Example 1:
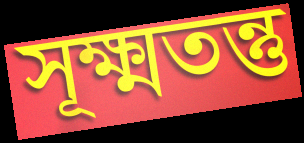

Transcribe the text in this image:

সূক্ষ্মতন্তু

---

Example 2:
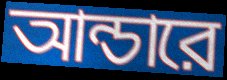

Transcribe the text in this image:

আন্ডারে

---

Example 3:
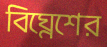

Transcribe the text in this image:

বিঘ্নেশের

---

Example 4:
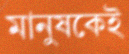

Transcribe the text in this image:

মানুষকেই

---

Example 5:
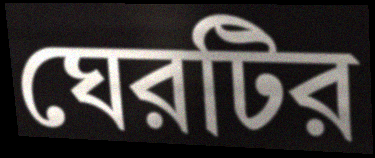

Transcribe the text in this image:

ঘেরটির